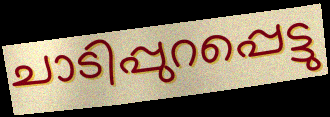
ചാടിപ്പുറപ്പെട്ടു